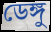
ডেঙ্গু